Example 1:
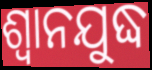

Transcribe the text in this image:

ଶ୍ଵାନଯୁଦ୍ଧ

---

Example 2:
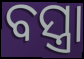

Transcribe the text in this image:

ବସ୍ତ୍ରା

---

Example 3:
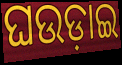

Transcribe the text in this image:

ଘଉଡ଼ାଇ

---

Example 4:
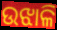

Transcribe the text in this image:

ଉଝାଳି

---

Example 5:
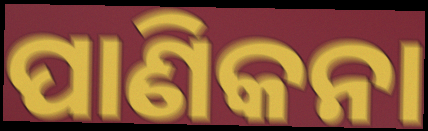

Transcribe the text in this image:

ପାଣିକନା